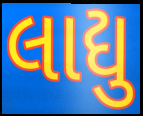
લાદ્યુ